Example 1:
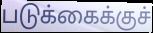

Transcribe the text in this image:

படுக்கைக்குச்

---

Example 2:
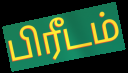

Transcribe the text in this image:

பிரீடம்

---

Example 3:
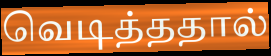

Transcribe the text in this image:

வெடித்ததால்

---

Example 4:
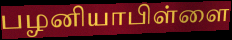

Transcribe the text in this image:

பழனியாபிள்ளை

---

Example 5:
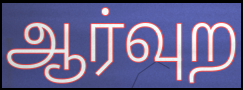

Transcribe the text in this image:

ஆர்வுற